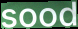
sood